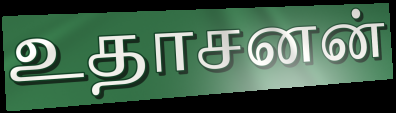
உதாசனன்